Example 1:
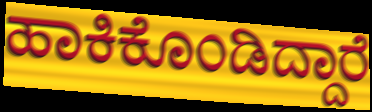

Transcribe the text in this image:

ಹಾಕಿಕೊಂಡಿದ್ದಾರೆ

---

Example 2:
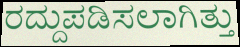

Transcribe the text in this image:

ರದ್ದುಪಡಿಸಲಾಗಿತ್ತು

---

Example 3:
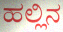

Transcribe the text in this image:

ಹಲ್ಲಿನ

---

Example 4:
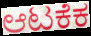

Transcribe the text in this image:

ಆಟಕೆಕ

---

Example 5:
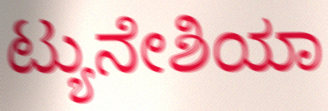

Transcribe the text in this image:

ಟ್ಯುನೇಶಿಯಾ